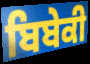
ਬਿਬੇਕੀ